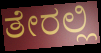
ತೇರಲ್ಲಿ